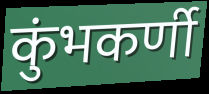
कुंभकर्णी